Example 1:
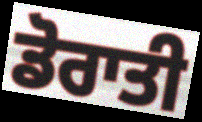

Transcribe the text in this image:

ਡੋਰਾਤੀ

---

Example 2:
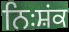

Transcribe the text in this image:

ਨਿਃਸ਼ਂਕ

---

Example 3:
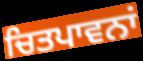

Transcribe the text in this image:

ਚਿਤਪਾਵਨਾਂ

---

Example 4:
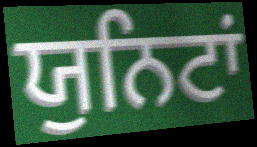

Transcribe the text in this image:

ਯੁਨਿਟਾਂ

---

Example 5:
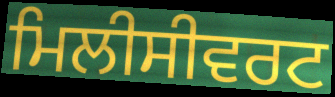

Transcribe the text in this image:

ਮਿਲੀਸੀਵਰਟ